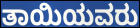
ತಾಯಿಯವರು